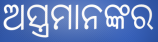
ଅସ୍ତ୍ରମାନଙ୍କର